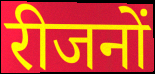
रीजनों